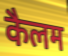
कैलम